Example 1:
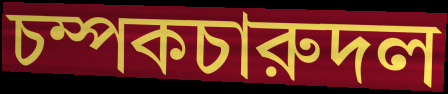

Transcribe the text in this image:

চম্পকচারুদল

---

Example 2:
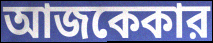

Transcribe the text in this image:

আজকেকার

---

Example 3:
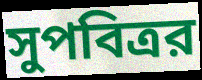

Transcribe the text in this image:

সুপবিত্রর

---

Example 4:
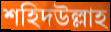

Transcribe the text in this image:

শহিদউল্লাহ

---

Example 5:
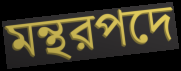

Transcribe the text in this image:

মন্থরপদে